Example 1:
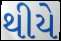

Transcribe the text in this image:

થીયે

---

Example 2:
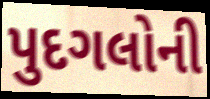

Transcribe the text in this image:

પુદગલોની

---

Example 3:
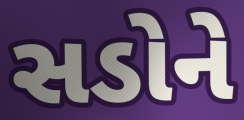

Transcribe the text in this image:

સડોને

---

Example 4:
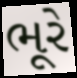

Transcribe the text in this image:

ભૂરે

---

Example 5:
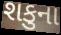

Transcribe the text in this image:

શકુના